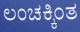
ಲಂಚಕ್ಕಿಂತ